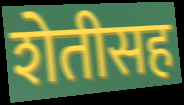
शेतीसह